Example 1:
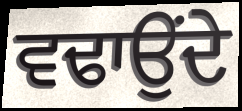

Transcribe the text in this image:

ਵਢਾਉਂਦੇ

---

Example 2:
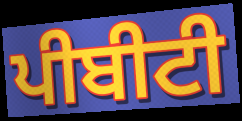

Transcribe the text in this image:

ਪੀਬੀਟੀ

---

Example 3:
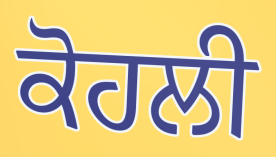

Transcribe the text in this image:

ਕੋਹਲੀ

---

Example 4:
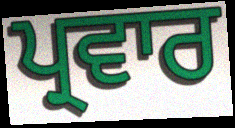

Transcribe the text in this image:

ਪ੍ਰਵਾਰ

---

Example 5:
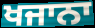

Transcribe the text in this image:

ਖਜਾਨਾ